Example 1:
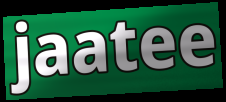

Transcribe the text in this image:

jaatee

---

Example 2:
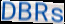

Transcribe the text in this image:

DBRs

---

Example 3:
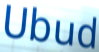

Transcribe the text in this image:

Ubud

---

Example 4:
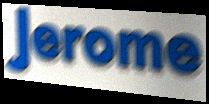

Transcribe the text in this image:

Jerome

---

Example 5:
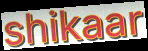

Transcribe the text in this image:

shikaar